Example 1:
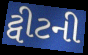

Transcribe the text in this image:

ટ્વીટની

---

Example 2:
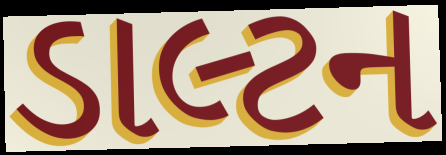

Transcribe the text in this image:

ડાલ્ટન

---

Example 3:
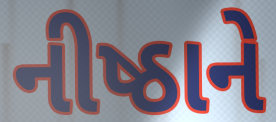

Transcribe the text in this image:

નીષ્ઠાને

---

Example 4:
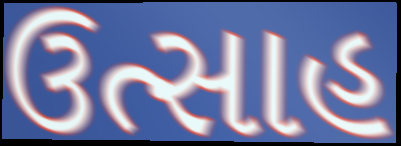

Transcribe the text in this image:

ઉત્સાહ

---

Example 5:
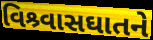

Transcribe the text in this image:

વિશ્ર્વાસઘાતને